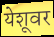
येशूवर